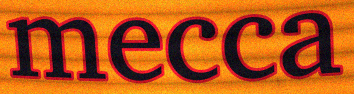
mecca